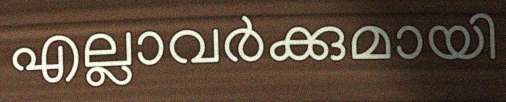
എല്ലാവർക്കുമായി